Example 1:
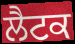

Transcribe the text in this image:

ਲੈਟਕ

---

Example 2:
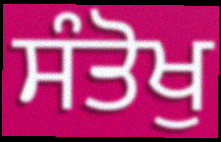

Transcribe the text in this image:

ਸੰਤੋਖੁ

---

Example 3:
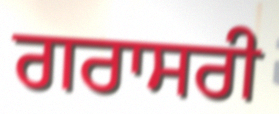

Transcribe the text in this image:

ਗਰਾਸਰੀ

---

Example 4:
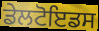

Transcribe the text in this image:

ਡੇਲਟੋਇਡਸ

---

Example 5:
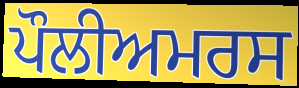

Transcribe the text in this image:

ਪੌਲੀਅਮਰਸ